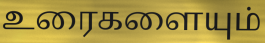
உரைகளையும்